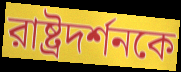
রাষ্ট্রদর্শনকে